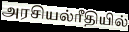
அரசியல்ரீதியில்